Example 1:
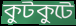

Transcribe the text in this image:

কুটকুটে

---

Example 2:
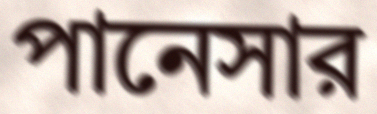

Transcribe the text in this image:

পানেসার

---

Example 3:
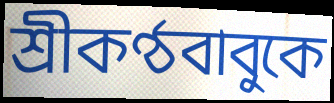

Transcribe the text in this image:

শ্রীকণ্ঠবাবুকে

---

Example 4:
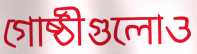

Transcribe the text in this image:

গোষ্ঠীগুলোও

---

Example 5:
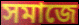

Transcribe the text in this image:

সমাজে